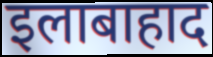
इलाबाहाद